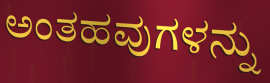
ಅಂತಹವುಗಳನ್ನು